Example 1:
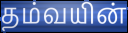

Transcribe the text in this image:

தம்வயின்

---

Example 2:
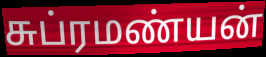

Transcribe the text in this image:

சுப்ரமண்யன்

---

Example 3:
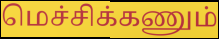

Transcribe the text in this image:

மெச்சிக்கணும்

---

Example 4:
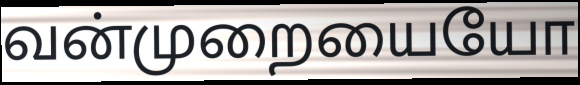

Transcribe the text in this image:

வன்முறையையோ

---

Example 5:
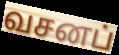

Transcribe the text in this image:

வசனப்